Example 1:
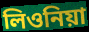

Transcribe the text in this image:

লিওনিয়া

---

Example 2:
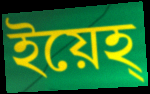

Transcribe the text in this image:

ইয়েহ্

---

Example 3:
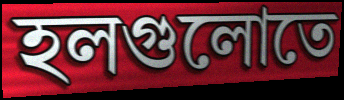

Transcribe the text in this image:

হলগুলোতে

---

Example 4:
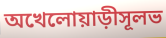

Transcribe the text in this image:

অখেলোয়াড়ীসূলভ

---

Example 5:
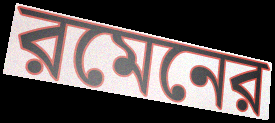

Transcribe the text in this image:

রমেনের